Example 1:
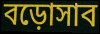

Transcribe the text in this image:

বড়োসাব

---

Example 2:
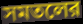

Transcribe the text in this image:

সমতলের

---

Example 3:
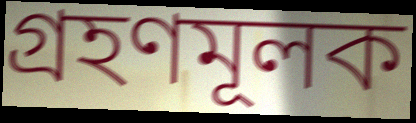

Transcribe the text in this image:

গ্রহণমূলক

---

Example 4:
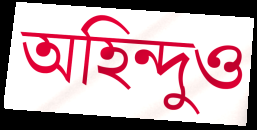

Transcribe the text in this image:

অহিন্দুও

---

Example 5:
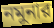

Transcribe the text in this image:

নমুনার